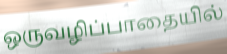
ஒருவழிப்பாதையில்